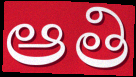
ఆతి